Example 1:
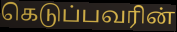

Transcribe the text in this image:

கெடுப்பவரின்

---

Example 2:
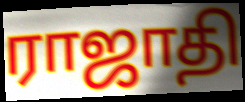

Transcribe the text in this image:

ராஜாதி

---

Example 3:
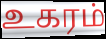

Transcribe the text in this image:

உகரம்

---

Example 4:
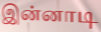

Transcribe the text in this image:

இன்னாடி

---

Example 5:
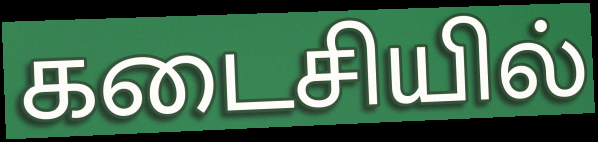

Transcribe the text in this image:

கடைசியில்